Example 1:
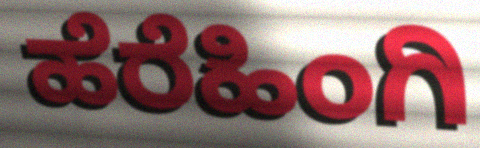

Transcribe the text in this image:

ಹೆರೆಹಿಂಗಿ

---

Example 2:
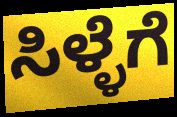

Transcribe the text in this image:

ಸಿಳ್ಳೆಗೆ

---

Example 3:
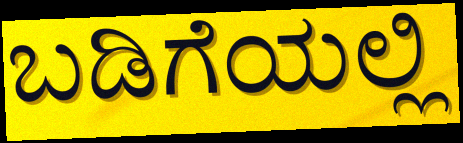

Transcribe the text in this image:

ಬಡಿಗೆಯಲ್ಲಿ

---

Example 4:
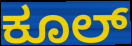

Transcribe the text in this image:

ಕೂಲ್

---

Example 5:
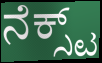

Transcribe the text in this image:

ನೆಕ್ಸ್ಟ್